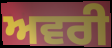
ਅਵਰੀ